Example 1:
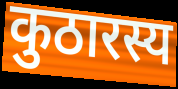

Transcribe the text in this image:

कुठारस्य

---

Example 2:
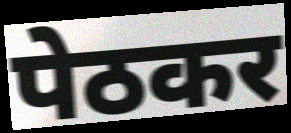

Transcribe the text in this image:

पेठकर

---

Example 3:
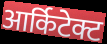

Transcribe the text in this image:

आर्किटेक्ट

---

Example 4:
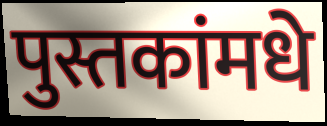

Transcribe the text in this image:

पुस्तकांमधे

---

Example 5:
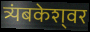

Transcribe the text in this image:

त्र्यंबकेश्वर